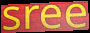
sree